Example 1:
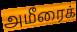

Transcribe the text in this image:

அமீரைக்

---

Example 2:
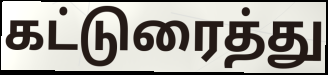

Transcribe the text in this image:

கட்டுரைத்து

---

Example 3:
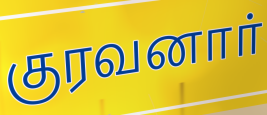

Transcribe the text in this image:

குரவனார்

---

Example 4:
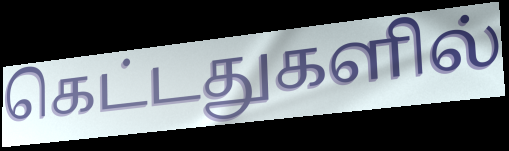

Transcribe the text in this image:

கெட்டதுகளில்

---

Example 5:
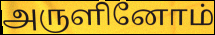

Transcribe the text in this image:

அருளினோம்